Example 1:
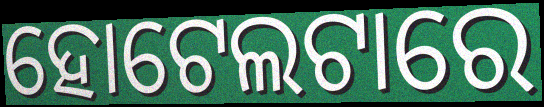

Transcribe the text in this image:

ହୋଟେଲଟାରେ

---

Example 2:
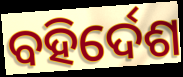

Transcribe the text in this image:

ବହିର୍ଦେଶ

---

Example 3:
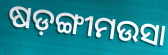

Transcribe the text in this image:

ଷଡ଼ଙ୍ଗୀମଉସା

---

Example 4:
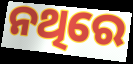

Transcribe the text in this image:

ନଥିରେ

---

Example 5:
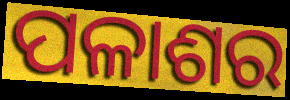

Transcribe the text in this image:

ପଳାଶର